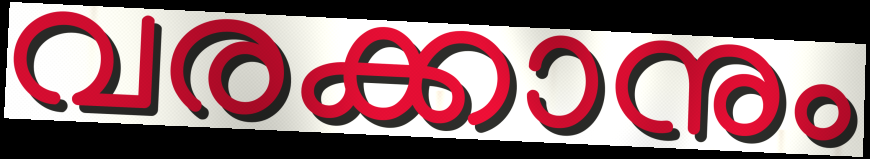
വരക്കാനും